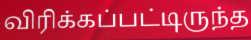
விரிக்கப்பட்டிருந்த